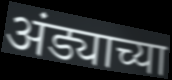
अंड्याच्या